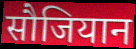
सौजियान